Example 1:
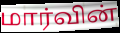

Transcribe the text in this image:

மார்வின்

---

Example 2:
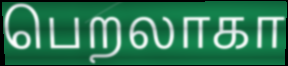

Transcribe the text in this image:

பெறலாகா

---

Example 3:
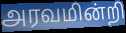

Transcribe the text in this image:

அரவமின்றி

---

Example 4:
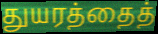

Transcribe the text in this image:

துயரத்தைத்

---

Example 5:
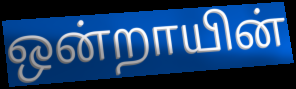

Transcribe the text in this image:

ஒன்றாயின்